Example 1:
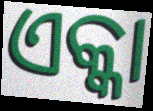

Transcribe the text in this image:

ଏକ୍କା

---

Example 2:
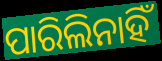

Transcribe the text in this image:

ପାରିଲିନାହିଁ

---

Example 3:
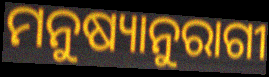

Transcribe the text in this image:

ମନୁଷ୍ୟାନୁରାଗୀ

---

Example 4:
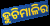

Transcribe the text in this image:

ହୁଚିମାଳିର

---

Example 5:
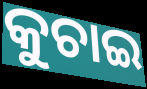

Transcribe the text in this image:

କୁଚାଇ